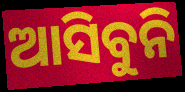
ଆସିବୁନି